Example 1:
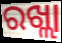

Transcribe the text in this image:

ରଖ୍ଲା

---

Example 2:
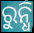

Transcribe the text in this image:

ରୁନ୍ଧି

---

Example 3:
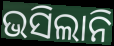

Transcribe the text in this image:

ଭସିଲାନି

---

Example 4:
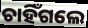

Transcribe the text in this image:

ଚାହିଁଗଲେ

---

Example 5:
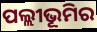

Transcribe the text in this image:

ପଲ୍ଲୀଭୂମିର